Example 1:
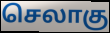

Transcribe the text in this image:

செலாகு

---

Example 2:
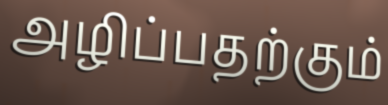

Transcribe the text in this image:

அழிப்பதற்கும்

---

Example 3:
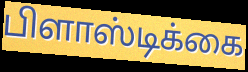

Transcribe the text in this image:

பிளாஸ்டிக்கை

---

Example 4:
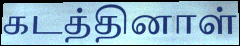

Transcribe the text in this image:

கடத்தினாள்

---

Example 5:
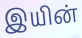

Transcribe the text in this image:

இயின்